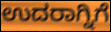
ಉದರಾಗ್ನಿಗೆ